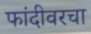
फांदीवरचा